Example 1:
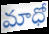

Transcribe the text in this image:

మాధో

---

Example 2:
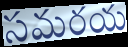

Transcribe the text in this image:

సమరయ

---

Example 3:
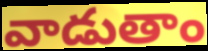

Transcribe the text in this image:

వాడుతాం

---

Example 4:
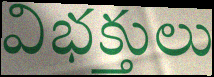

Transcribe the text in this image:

విభక్తులు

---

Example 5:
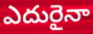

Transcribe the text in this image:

ఎదురైనా